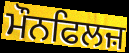
ਮੌਨਫਿਲਜ਼